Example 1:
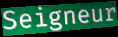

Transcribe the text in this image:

Seigneur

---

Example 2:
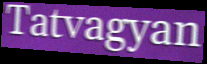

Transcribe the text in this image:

Tatvagyan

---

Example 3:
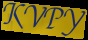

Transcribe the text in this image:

KVPY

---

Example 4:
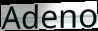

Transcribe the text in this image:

Adeno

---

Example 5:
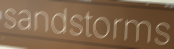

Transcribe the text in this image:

sandstorms